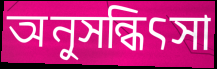
অনুসন্ধিৎসা